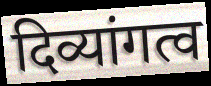
दिव्यांगत्व